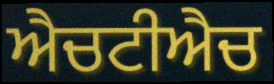
ਐਚਟੀਐਚ